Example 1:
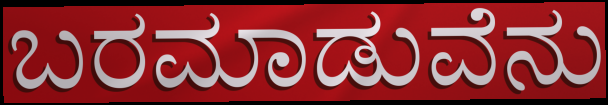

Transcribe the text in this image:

ಬರಮಾಡುವೆನು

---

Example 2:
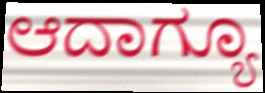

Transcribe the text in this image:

ಆದಾಗ್ಯೂ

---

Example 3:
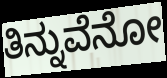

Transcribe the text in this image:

ತಿನ್ನುವೆನೋ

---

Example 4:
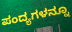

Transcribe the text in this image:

ಪಂದ್ಯಗಳನ್ನೂ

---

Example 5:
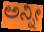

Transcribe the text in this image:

ಅನ್ನೀ